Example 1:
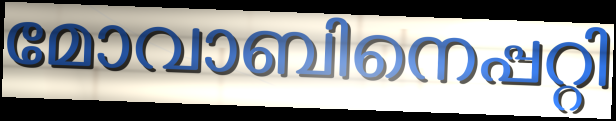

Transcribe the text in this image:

മോവാബിനെപ്പറ്റി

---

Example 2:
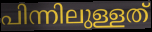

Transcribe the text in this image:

പിന്നിലുള്ളത്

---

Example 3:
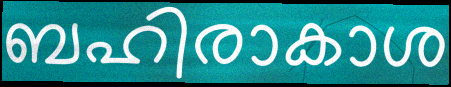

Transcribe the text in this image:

ബഹിരാകാശ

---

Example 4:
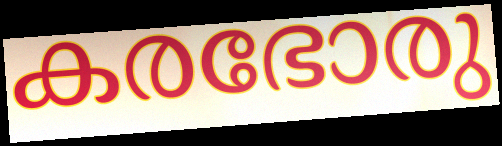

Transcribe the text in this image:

കരഭോരു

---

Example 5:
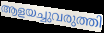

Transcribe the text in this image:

ആളയച്ചുവരുത്തി